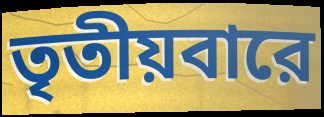
তৃতীয়বারে